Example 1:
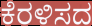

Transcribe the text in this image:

ಕೆರಳಿಸದ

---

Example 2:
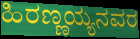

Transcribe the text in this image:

ಹಿರಣ್ಣಯ್ಯನವರ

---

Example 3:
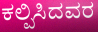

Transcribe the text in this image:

ಕಲ್ಪಿಸಿದವರ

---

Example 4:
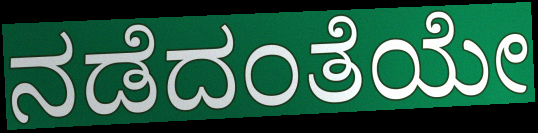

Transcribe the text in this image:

ನಡೆದಂತೆಯೇ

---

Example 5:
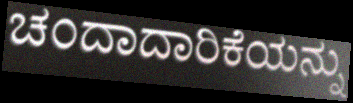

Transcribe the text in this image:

ಚಂದಾದಾರಿಕೆಯನ್ನು